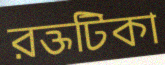
রক্তটিকা